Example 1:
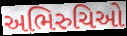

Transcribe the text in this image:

અભિરુચિઓ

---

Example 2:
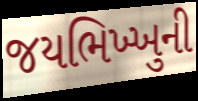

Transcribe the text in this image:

જયભિખ્ખુની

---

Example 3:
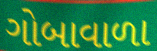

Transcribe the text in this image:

ગોબાવાળા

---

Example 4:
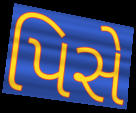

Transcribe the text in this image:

પિસે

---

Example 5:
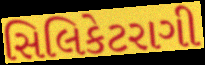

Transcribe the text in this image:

સિલિકેટરાગી